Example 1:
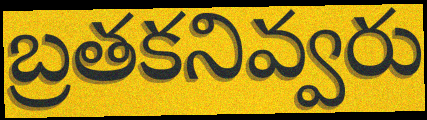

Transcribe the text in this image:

బ్రతకనివ్వరు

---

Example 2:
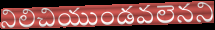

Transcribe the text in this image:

నిలిచియుండవలెనని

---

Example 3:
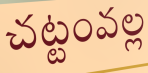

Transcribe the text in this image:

చట్టంవల్ల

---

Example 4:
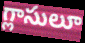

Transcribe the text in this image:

గ్లాసులూ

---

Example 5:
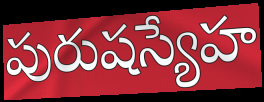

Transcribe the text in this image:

పురుషస్యేహ